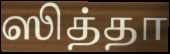
ஸித்தா